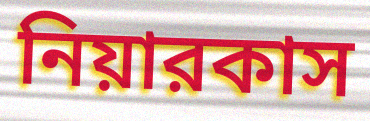
নিয়ারকাস